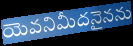
యెవనిమీదనైనను